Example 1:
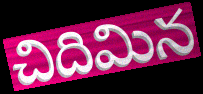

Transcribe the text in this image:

చిదిమిన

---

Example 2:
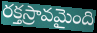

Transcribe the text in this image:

రక్తస్రావమైంది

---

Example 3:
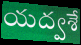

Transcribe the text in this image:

యద్వశే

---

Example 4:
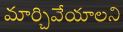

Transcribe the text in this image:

మార్చివేయాలని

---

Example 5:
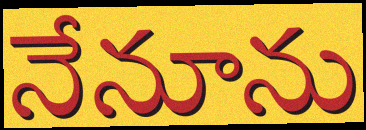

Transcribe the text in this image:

నేనూను